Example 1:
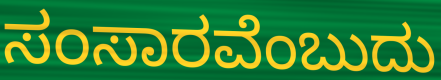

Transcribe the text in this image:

ಸಂಸಾರವೆಂಬುದು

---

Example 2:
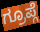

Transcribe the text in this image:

ಗ್ರೂಪ್ಗೆ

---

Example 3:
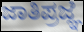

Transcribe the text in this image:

ಜಾತಿಪ್ರಜ್ಞೆ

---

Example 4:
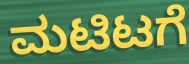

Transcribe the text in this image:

ಮಟಿಟಗೆ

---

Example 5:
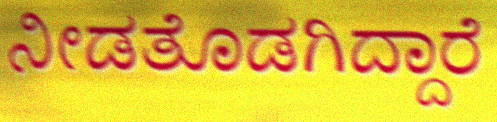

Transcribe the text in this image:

ನೀಡತೊಡಗಿದ್ದಾರೆ